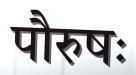
पौरुषः